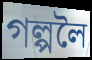
গল্পলৈ